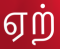
ஏற்